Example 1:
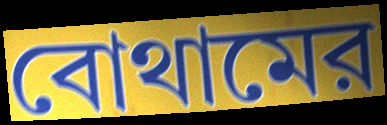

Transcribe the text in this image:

বোথামের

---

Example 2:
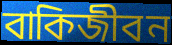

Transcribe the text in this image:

বাকিজীবন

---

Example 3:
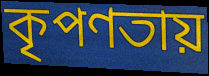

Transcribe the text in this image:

কৃপণতায়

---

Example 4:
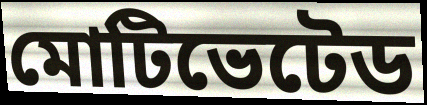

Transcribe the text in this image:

মোটিভেটেড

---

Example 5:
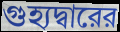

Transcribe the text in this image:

গুহ্যদ্বারের